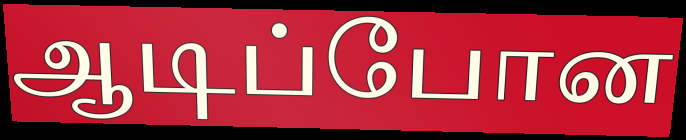
ஆடிப்போன